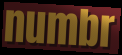
numbr